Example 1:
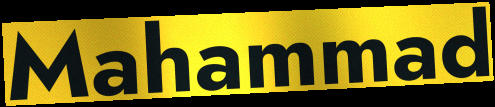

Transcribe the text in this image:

Mahammad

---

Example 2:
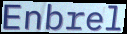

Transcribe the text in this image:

Enbrel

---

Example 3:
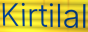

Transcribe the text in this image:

Kirtilal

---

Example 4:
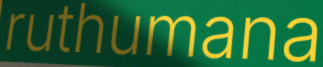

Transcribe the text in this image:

ruthumana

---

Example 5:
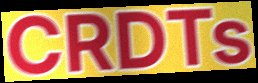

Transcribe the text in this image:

CRDTs